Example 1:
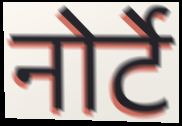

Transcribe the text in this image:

नोर्टे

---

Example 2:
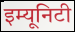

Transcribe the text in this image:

इम्यूनिटी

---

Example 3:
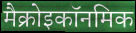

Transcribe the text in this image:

मैक्रोइकॉनमिक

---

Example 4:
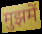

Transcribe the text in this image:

मुझमें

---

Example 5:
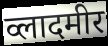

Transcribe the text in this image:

व्लादमीर